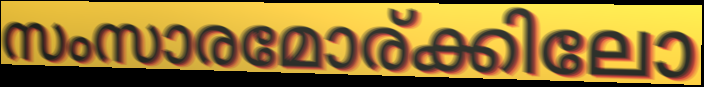
സംസാരമോര്ക്കിലോ